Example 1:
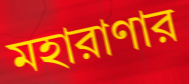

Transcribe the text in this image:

মহারাণার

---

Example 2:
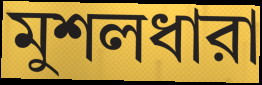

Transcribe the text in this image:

মুশলধারা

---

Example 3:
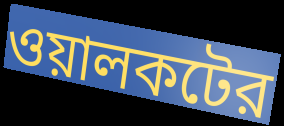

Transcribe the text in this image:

ওয়ালকটের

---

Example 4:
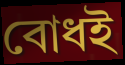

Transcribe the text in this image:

বোধই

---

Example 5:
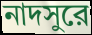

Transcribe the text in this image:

নাদসুরে